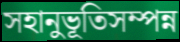
সহানুভূতিসম্পন্ন